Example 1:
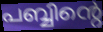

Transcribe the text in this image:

പബ്ബിന്റെ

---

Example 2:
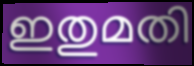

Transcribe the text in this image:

ഇതുമതി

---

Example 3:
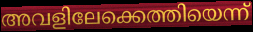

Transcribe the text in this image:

അവളിലേക്കെത്തിയെന്ന്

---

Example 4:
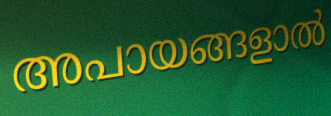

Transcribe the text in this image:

അപായങ്ങളാൽ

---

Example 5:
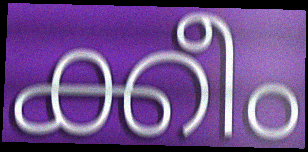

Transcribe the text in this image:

ക്കീം